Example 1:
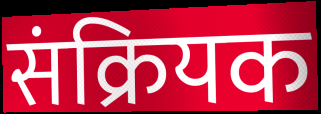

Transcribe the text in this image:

संक्रियक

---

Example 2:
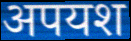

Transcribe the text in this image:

अपयश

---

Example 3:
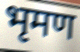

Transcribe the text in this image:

भृमण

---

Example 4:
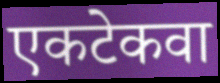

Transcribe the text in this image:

एकटेकवा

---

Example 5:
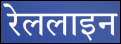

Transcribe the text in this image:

रेललाइन